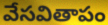
వేసవితాపం